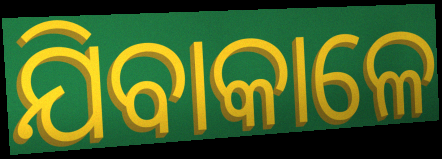
ଯିବାକାଳେ